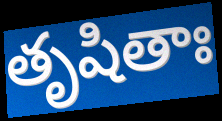
తృషితాః